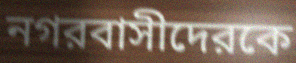
নগরবাসীদেরকে